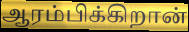
ஆரம்பிக்கிறான்